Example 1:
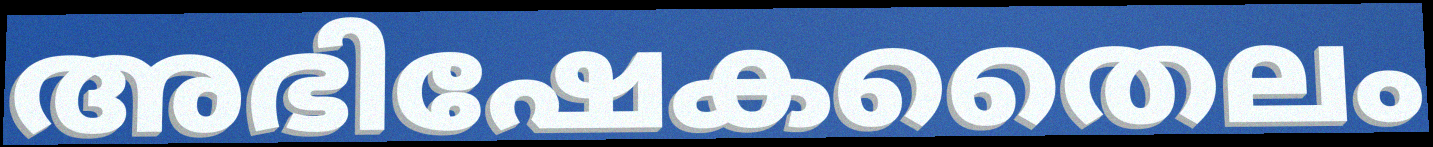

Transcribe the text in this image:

അഭിഷേകതൈലം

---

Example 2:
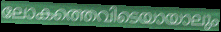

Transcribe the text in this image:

ലോകത്തെവിടെയായാലും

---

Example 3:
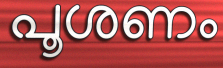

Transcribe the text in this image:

പൂശണം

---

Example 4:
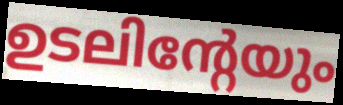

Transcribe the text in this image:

ഉടലിന്റേയും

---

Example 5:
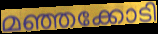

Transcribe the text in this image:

മഞ്ഞക്കോടി